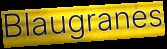
Blaugranes